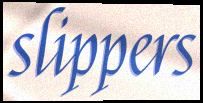
slippers